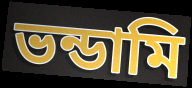
ভন্ডামি